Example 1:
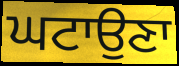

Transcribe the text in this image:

ਘਟਾਉਣਾ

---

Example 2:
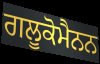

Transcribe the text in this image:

ਗਲੂਕੋਮੈਨਨ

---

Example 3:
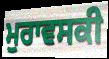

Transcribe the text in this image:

ਮੁਰਾਵਸਕੀ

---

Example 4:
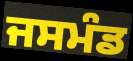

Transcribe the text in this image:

ਜਸਮੰਡ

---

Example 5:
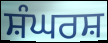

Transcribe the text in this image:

ਸ਼ੰਘਰਸ਼